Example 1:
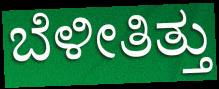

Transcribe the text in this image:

ಬೆಳೀತಿತ್ತು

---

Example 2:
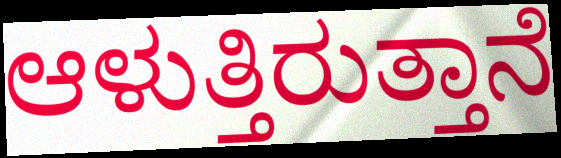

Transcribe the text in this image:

ಆಳುತ್ತಿರುತ್ತಾನೆ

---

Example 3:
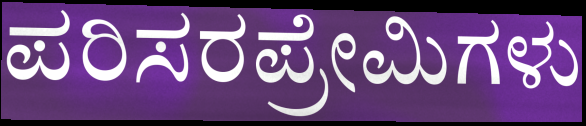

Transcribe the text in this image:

ಪರಿಸರಪ್ರೇಮಿಗಳು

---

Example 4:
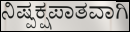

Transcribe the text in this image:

ನಿಷ್ಪಕ್ಷಪಾತವಾಗಿ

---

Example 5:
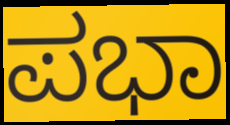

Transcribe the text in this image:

ಪಭಾ